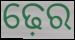
ଢ଼େର